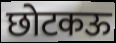
छोटकऊ